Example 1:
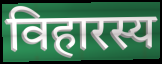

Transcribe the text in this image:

विहारस्य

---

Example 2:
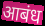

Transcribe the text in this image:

आबंध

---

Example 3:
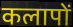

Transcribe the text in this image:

कलापों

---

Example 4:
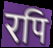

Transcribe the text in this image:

रपि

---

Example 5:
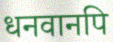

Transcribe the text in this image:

धनवानपि